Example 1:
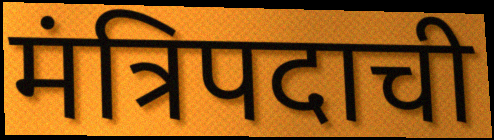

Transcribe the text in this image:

मंत्रिपदाची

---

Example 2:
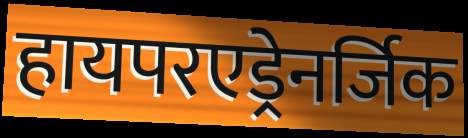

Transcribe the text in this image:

हायपरएड्रेनर्जिक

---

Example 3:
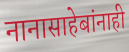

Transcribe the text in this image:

नानासाहेबांनाही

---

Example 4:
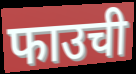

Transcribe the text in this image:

फाउची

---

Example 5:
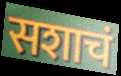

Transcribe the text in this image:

सशाचं